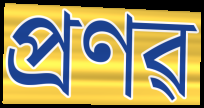
প্ৰণৱ